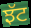
ਝੱਟ